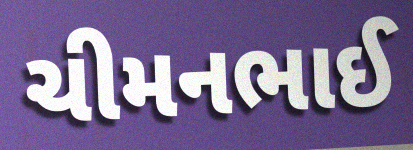
ચીમનભાઈ